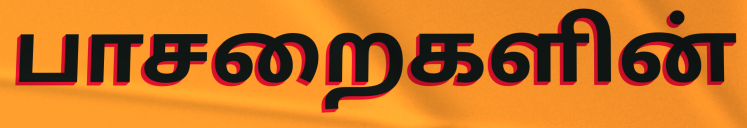
பாசறைகளின்